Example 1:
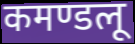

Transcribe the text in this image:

कमण्डलू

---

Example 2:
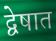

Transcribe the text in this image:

द्वेषात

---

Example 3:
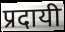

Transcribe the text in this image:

प्रदायी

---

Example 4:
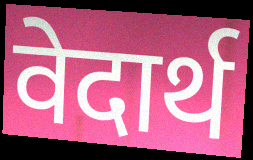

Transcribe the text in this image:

वेदार्थ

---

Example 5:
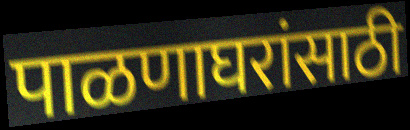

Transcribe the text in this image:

पाळणाघरांसाठी